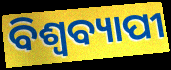
ବିଶ୍ୱବ୍ୟାପୀ